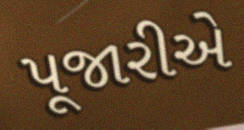
પૂજારીએ